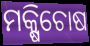
ମକ୍ଷିଚୋଷ